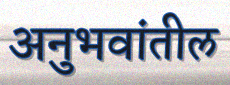
अनुभवांतील